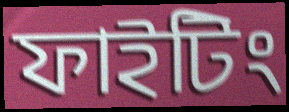
ফাইটিং